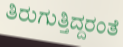
ತಿರುಗುತ್ತಿದ್ದರಂತೆ